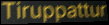
Tiruppattur